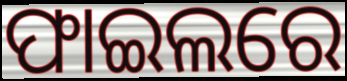
ଫାଇଲରେ